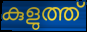
കുളുത്ത്